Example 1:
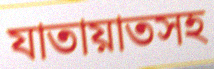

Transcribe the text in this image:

যাতায়াতসহ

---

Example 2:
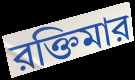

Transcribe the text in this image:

রক্তিমার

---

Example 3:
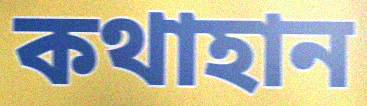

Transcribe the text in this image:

কথাহান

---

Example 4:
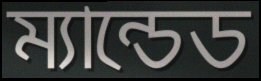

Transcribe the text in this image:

ম্যান্ডেড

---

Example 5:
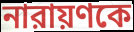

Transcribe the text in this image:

নারায়ণকে